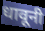
धावूनी